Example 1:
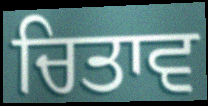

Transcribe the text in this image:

ਚਿਤਾਵ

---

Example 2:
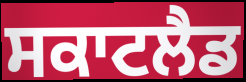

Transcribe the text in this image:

ਸਕਾਟਲੈਡ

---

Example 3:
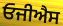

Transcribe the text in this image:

ਓਜੀਐਸ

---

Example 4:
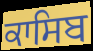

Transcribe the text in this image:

ਕਾਸਿਬ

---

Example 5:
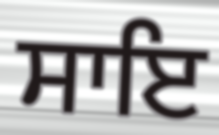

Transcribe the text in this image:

ਸਾਇ